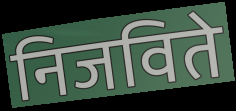
निजविते